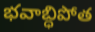
భవాబ్ధిపోత